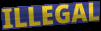
ILLEGAL